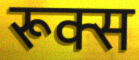
रूक्स